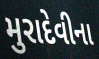
મુરાદેવીના